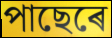
পাছেৰে